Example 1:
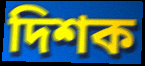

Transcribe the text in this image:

দিশক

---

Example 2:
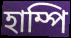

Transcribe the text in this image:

হাম্পি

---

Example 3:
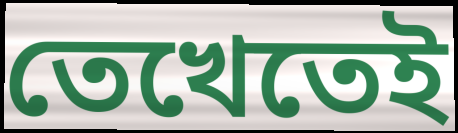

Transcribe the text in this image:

তেখেতেই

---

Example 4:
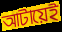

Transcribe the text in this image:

আটায়েই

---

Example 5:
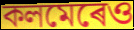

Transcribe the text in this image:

কলমেৰেও